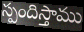
స్పందిస్తాము